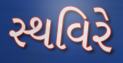
સ્થવિરે